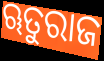
ୠତୁରାଜ